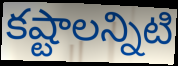
కష్టాలన్నిటి